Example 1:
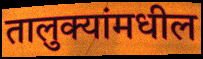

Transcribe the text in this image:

तालुक्यांमधील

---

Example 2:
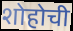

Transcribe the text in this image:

शोहोची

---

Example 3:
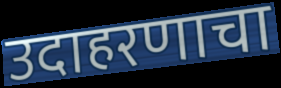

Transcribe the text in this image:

उदाहरणाचा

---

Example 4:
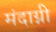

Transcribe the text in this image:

मंदाग्नी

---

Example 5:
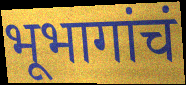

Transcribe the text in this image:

भूभागांचं